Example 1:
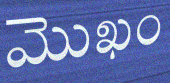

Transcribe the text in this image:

మొఖం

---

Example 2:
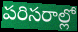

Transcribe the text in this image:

పరిసరాల్లో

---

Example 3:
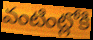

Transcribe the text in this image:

వంటింట్లోకి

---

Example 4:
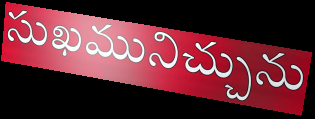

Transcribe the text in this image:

సుఖమునిచ్చును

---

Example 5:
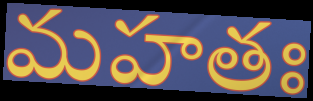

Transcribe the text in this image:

మహతః